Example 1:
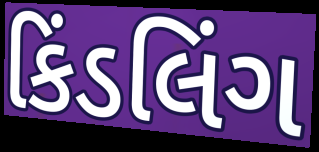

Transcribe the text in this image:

કિંડલિંગ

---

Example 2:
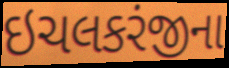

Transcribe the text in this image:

ઇચલકરંજીના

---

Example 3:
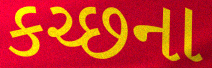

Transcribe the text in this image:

કચ્છના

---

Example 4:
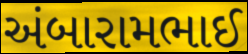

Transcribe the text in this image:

અંબારામભાઈ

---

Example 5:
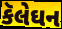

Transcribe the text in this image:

કૅલેઘન